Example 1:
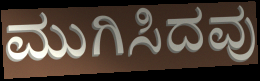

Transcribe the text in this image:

ಮುಗಿಸಿದವು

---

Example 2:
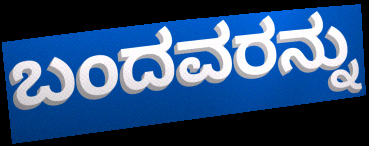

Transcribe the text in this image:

ಬಂದವರನ್ನು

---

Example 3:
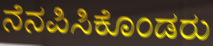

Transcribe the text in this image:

ನೆನಪಿಸಿಕೊಂಡರು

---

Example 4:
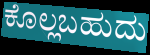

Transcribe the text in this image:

ಕೊಲ್ಲಬಹುದು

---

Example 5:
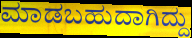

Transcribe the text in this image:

ಮಾಡಬಹುದಾಗಿದ್ದು